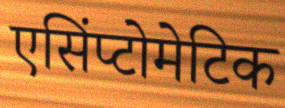
एसिंप्टोमेटिक